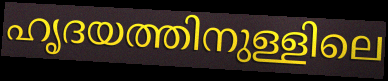
ഹൃദയത്തിനുള്ളിലെ